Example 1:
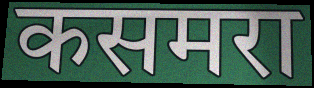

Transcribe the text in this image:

कसमरा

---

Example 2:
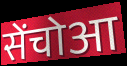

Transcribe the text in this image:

सेंचोआ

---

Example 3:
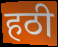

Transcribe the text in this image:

हठी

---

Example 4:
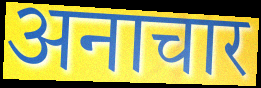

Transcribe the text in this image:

अनाचार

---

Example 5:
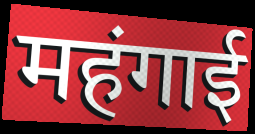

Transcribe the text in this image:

महंगाई